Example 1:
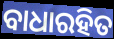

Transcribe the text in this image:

ବାଧାରହିତ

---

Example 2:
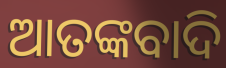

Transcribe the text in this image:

ଆତଙ୍କବାଦି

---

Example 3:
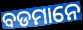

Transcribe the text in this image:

ବଡମାନେ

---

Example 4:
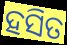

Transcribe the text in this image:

ହସିତ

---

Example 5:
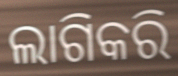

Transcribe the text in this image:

ଲାଗିକରି